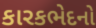
કારકભેદનો